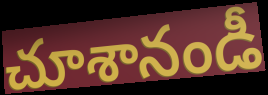
చూశానండీ